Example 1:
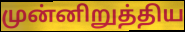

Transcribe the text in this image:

முன்னிறுத்திய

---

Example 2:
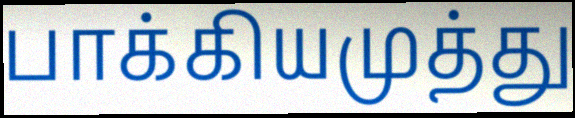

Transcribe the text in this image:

பாக்கியமுத்து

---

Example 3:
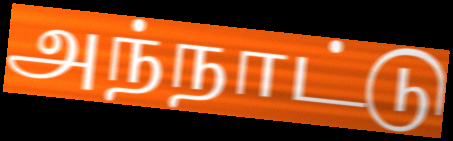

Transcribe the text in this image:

அந்நாட்டு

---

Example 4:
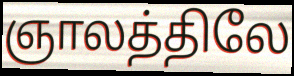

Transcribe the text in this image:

ஞாலத்திலே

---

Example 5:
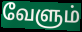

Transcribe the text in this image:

வேளும்